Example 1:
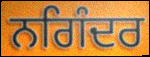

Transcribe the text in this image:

ਨਗਿੰਦਰ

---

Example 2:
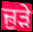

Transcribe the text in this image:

ਜ਼ੁੜੇ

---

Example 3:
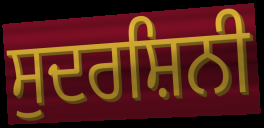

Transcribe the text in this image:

ਸੁਦਰਸ਼ਿਨੀ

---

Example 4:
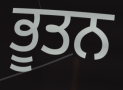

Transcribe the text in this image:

ਭੂਤਨ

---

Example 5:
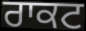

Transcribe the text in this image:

ਰਾਕਟ